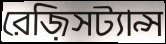
রেজ়িসট্যান্স